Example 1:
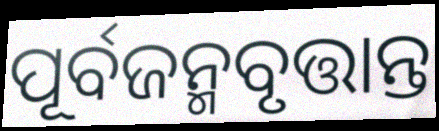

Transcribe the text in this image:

ପୂର୍ବଜନ୍ମବୃତ୍ତାନ୍ତ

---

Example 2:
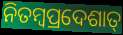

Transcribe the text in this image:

ନିତମ୍ବପ୍ରଦେଶାତ୍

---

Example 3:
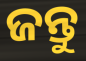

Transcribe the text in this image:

ଜନ୍ତୁ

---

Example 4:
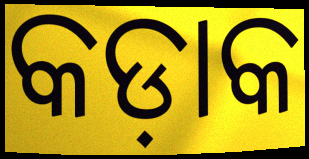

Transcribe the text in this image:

କଡ଼ାକ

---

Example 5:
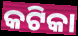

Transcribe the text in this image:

କଟିକା